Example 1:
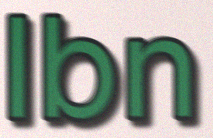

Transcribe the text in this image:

Ibn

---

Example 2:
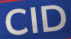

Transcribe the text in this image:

CID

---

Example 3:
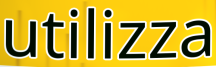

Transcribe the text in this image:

utilizza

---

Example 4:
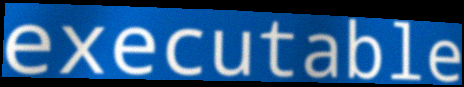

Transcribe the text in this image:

executable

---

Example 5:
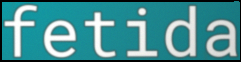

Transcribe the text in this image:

fetida